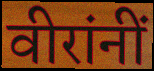
वीरांनीं